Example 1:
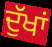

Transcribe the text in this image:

ਦੁੱਖਾਂ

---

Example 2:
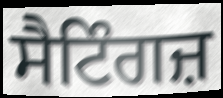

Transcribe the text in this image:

ਸੈਟਿੰਗਜ਼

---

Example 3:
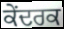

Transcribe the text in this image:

ਕੇਂਦਰਕ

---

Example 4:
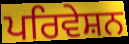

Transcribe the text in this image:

ਪਰਿਵੇਸ਼ਨ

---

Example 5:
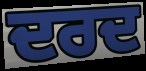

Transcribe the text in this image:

ਦਰਦ